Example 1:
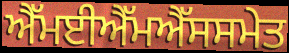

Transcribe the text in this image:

ਐੱਮਈਐੱਮਐੱਸਸਮੇਤ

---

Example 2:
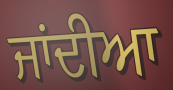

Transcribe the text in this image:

ਜਾਂਦੀਆ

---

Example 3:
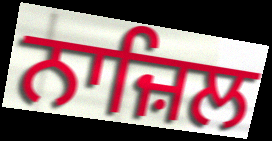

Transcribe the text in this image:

ਨਾਜ਼ਿਲ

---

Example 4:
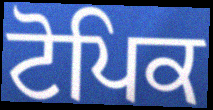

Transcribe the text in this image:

ਟੋਪਿਕ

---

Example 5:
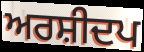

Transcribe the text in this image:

ਅਰਸ਼ੀਦਪ